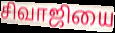
சிவாஜியை